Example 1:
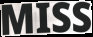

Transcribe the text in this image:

MISS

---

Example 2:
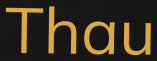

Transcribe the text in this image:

Thau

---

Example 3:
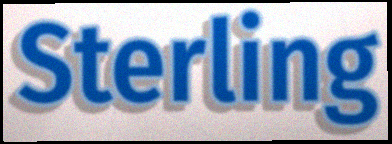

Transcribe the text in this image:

Sterling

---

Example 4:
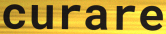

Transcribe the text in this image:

curare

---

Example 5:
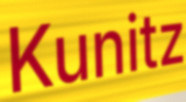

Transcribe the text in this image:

Kunitz